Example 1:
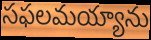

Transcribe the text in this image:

సఫలమయ్యాను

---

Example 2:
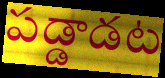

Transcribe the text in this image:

పడ్డాడట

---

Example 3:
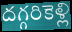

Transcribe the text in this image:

దగ్గరికెళ్లి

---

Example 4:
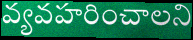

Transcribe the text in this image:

వ్యవహరించాలని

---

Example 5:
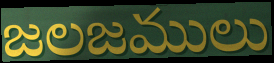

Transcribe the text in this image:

జలజములు